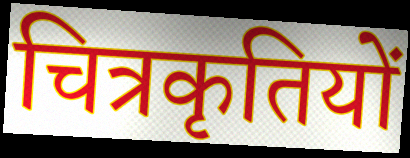
चित्रकृतियों